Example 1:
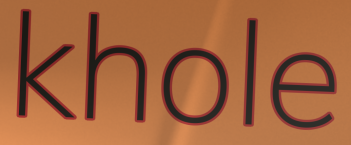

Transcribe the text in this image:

khole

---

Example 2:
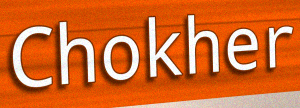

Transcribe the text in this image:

Chokher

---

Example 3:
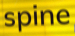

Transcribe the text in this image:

spine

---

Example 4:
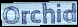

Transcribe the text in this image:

Orchid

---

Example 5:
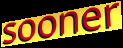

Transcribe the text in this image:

sooner